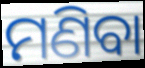
ମଣିବା